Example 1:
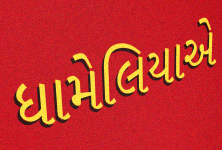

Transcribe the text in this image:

ધામેલિયાએ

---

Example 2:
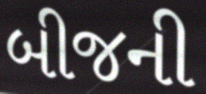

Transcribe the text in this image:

બીજની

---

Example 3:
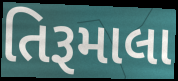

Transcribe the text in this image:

તિરૂમાલા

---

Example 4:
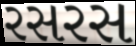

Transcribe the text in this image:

રસરસ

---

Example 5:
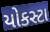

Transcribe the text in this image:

યોકસ્ટા